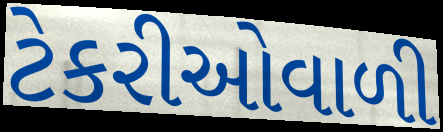
ટેકરીઓવાળી